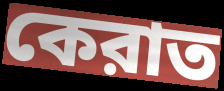
কেরাত